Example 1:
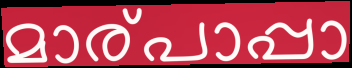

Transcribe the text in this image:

മാര്പാപ്പാ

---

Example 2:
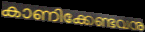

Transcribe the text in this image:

കാണിക്കേണ്ടവനു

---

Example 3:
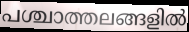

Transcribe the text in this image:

പശ്ചാത്തലങ്ങളിൽ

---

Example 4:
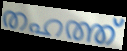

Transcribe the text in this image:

തഹത്ത്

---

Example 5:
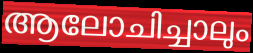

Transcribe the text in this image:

ആലോചിച്ചാലും